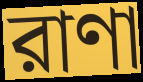
রাণা